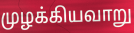
முழக்கியவாறு